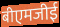
बीएमजीई